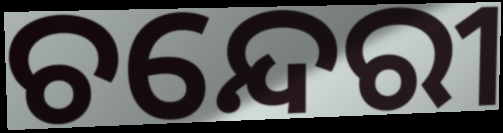
ଚନ୍ଦେରୀ